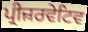
ਪ੍ਰੀਜ਼ਰਵੇਟਿਵ